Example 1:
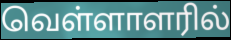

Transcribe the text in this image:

வெள்ளாளரில்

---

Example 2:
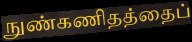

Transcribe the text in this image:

நுண்கணிதத்தைப்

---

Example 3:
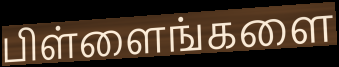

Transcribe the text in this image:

பிள்ளைங்களை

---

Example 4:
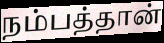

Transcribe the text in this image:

நம்பத்தான்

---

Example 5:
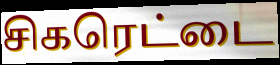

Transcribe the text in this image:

சிகரெட்டை